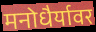
मनोधैर्यावर